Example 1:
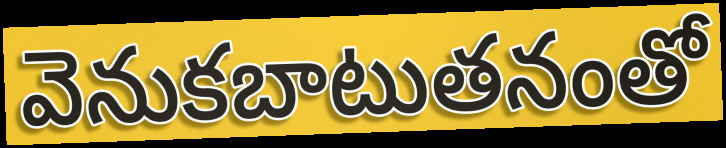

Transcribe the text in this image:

వెనుకబాటుతనంతో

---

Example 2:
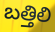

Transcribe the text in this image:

బత్తిలి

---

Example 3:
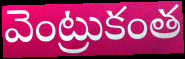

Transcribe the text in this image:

వెంట్రుకంత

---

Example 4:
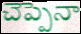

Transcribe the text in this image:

చెప్పెనా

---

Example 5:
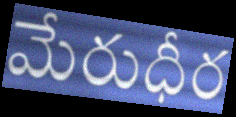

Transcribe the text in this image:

మేరుధీర